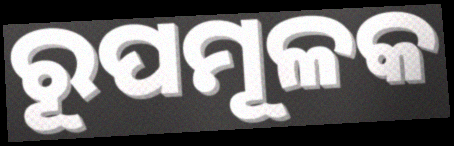
ରୂପମୂଳକ